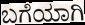
ಬಗೆಯಾಗಿ